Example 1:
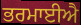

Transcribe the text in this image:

ਭਰਮਾਈਐ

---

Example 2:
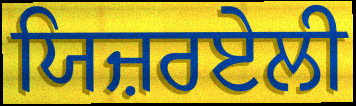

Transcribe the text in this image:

ਯਿਜ਼ਰਏਲੀ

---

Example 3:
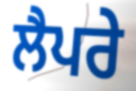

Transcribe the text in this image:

ਲੈਪਰੇ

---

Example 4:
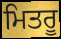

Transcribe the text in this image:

ਮਿਤਰੂ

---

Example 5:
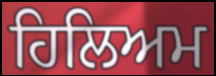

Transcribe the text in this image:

ਹਿਲਿਅਮ